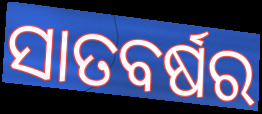
ସାତବର୍ଷର